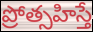
ప్రోత్సహిస్తే